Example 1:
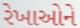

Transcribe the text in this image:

રેખાઓને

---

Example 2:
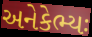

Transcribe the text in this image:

અનેકેભ્યઃ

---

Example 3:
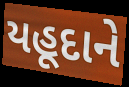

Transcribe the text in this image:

યહૂદાને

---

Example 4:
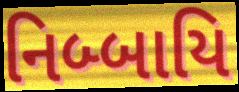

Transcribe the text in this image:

નિબ્બાયિ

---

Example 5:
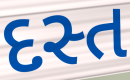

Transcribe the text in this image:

દસ્ત